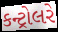
કન્ટ્રોલરે